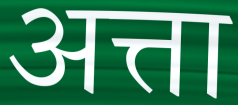
अत्ता